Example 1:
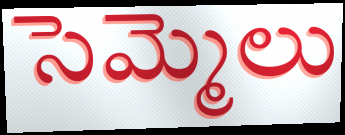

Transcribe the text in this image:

సెమ్మెలు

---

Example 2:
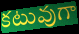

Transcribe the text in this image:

కటువుగా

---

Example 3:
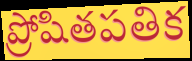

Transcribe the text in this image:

ప్రోషితపతిక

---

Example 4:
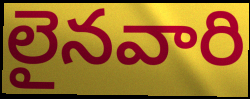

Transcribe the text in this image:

లైనవారి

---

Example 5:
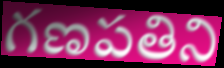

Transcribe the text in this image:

గణపతిని